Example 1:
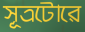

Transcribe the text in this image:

সূত্ৰটোৱে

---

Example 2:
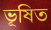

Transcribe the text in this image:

ভূষিত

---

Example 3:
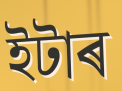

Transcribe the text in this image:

ইটাৰ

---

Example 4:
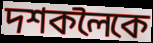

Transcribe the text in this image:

দশকলৈকে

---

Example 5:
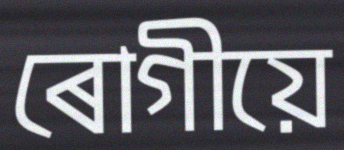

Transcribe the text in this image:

ৰোগীয়ে